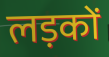
लड़कों